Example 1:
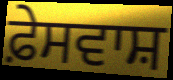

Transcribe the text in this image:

ਫ਼ੇਸਵਾਸ਼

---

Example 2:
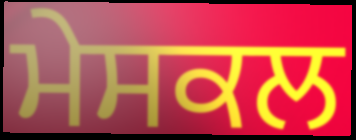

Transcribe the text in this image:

ਮੇਸਕਲ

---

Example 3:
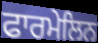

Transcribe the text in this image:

ਫਾਰਮੇਲਿਨ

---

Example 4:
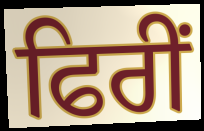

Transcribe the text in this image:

ਫਿਰੀਂ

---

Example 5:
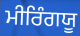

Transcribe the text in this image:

ਮੀਰਿੰਗਯੂ